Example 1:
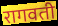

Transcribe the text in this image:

रागवती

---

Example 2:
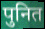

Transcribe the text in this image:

पुनित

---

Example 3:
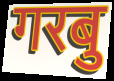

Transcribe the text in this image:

गरबु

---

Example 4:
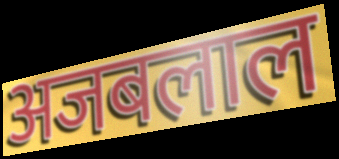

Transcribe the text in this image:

अजबलाल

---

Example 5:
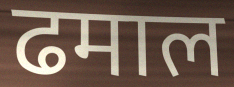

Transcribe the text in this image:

ढमाल